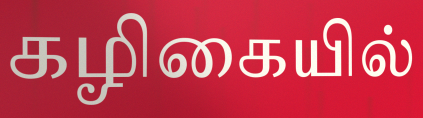
கழிகையில்